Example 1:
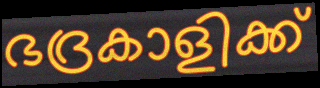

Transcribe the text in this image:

ഭദ്രകാളിക്ക്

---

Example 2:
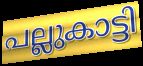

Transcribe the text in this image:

പല്ലുകാട്ടി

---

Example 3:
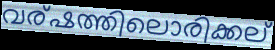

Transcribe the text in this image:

വര്ഷത്തിലൊരിക്കല്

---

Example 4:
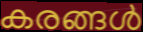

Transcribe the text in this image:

കരങ്ങൾ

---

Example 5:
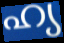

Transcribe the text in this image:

ഹ്യ